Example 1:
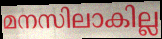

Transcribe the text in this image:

മനസിലാകില്ല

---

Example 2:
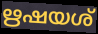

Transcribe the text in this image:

ഋഷയശ്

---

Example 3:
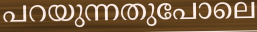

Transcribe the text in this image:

പറയുന്നതുപോലെ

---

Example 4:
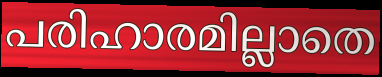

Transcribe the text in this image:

പരിഹാരമില്ലാതെ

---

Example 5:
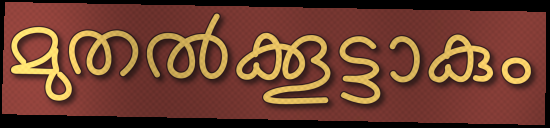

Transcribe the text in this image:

മുതൽക്കൂട്ടാകും